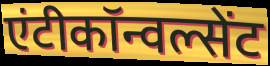
एंटीकॉन्वल्सेंट